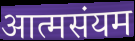
आत्मसंयम